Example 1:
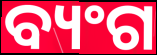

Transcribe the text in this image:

ବ୍ୟଂଗ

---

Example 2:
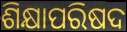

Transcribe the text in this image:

ଶିକ୍ଷାପରିଷଦ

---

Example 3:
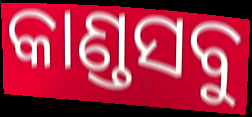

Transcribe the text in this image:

କାଣ୍ଡସବୁ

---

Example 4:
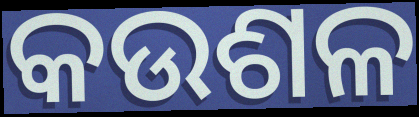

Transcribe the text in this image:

କଉଶଳ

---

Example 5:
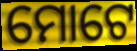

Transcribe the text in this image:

ମୋଟେ